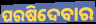
ପରଷିଦେବାର